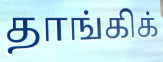
தாங்கிக்